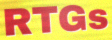
RTGs